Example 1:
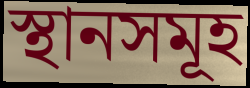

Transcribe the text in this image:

স্থানসমূহ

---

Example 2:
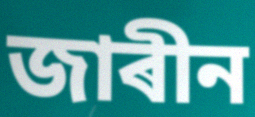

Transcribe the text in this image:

জাৰীন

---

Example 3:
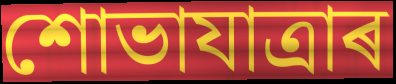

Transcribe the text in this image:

শোভাযাত্ৰাৰ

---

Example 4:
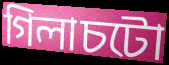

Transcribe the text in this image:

গিলাচটো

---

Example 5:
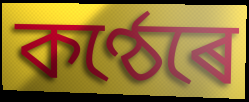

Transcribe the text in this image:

কণ্ঠেৰে